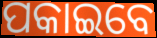
ପକାଇବେ